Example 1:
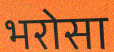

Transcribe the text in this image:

भरोसा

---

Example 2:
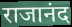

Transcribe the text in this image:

राजानंद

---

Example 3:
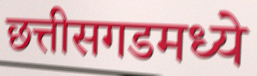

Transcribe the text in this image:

छत्तीसगडमध्ये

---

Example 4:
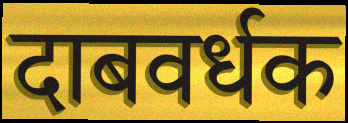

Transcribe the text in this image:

दाबवर्धक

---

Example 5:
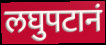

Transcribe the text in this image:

लघुपटानं